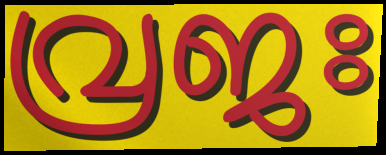
വ്രജഃ